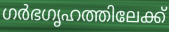
ഗർഭഗൃഹത്തിലേക്ക്